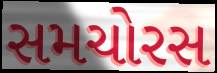
સમચોરસ